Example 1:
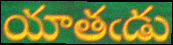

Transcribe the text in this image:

యాతఁడు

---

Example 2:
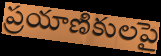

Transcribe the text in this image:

ప్రయాణికులపై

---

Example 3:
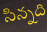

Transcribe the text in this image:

సిన్నది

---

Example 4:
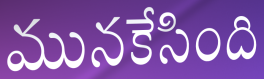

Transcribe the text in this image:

మునకేసింది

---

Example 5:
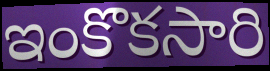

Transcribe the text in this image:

ఇంకొకసారి